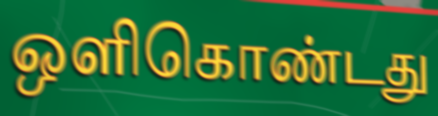
ஒளிகொண்டது